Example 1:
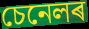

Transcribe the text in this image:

চেনেলৰ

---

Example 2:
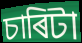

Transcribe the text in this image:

চাৰিটা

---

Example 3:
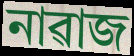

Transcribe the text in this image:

নাৱাজ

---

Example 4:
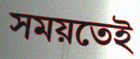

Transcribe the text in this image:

সময়তেই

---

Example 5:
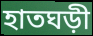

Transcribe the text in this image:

হাতঘড়ী